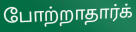
போற்றாதார்க்